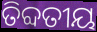
ତିବ୍ଦତୀୟ